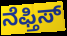
ನೆಫ್ತಿಸ್